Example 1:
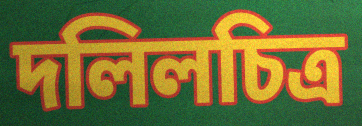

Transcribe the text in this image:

দলিলচিত্র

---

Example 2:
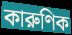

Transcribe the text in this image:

কারুণিক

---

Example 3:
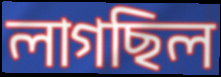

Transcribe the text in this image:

লাগছিল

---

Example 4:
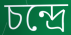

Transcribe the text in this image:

চন্দ্রে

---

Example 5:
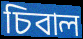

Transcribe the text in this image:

চিবাল